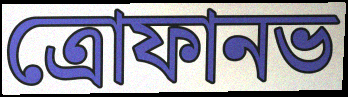
ত্রোফানভ